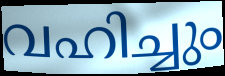
വഹിച്ചും